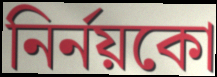
নিৰ্নয়কো